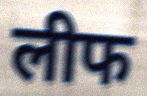
लीफ